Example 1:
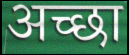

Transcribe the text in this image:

अच्छा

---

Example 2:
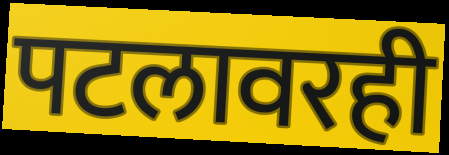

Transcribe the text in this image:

पटलावरही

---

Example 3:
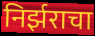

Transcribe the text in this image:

निर्झराचा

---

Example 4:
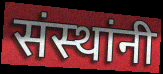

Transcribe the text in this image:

संस्थांनी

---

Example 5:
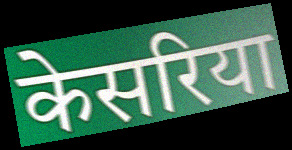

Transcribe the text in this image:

केसरिया